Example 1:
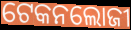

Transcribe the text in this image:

ଟେକନଲୋଜୀ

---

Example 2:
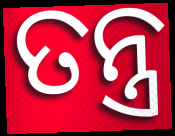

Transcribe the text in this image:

ତନ୍ତ୍ର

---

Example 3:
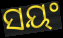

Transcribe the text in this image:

ସୟଂ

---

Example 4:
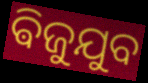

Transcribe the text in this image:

ଵିଜୁଯୁବ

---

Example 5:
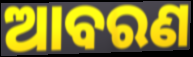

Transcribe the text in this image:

ଆବରଣ